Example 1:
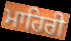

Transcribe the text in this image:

ਮਾਹਿਰੀ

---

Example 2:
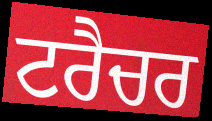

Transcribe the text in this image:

ਟਰੈਚਰ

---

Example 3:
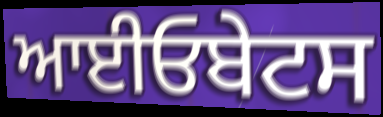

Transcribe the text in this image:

ਆਈਓਬੇਟਸ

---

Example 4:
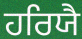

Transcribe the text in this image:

ਹਰਿਯੈ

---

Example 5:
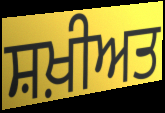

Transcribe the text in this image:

ਸ਼ਖ਼ੀਅਤ